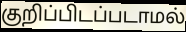
குறிப்பிடப்படாமல்